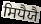
ਸਿਧੈਯੈ